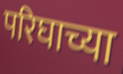
परिघाच्या